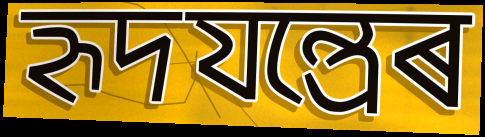
হৃদযন্ত্ৰেৰ